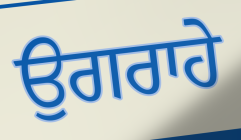
ਉਗਰਾਹੇ